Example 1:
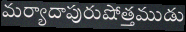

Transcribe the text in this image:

మర్యాదాపురుషోత్తముడు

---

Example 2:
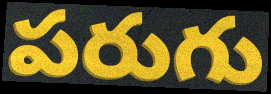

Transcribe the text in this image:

పరుగు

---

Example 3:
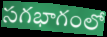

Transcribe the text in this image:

సగభాగంలో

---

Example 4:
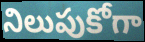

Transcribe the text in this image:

నిలుపుకోగా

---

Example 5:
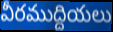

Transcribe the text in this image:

వీరముద్దియలు